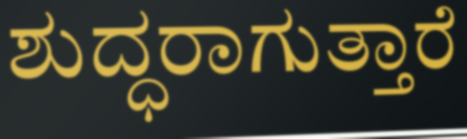
ಶುದ್ಧರಾಗುತ್ತಾರೆ